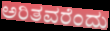
ಅರಿತವರೆಂದು